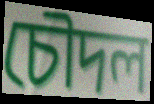
চৌদল